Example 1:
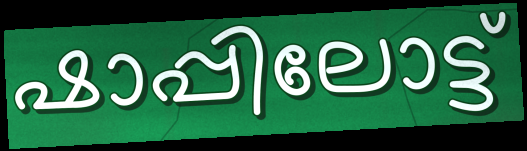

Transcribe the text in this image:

ഷാപ്പിലോട്ട്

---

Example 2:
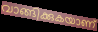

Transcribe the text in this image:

വാങ്ങിക്കുകയാണ്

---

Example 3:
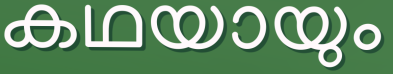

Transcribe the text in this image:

കഥയായും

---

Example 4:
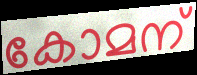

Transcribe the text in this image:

കോമന്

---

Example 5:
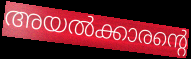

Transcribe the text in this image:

അയൽക്കാരന്റെ